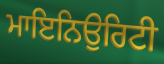
ਮਾਇਨਿਉਰਿਟੀ